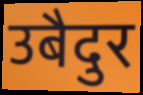
उबैदुर